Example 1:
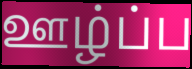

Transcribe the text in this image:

ஊழ்ப்ப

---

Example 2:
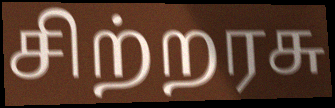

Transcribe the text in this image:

சிற்றரசு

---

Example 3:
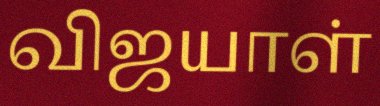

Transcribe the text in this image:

விஜயாள்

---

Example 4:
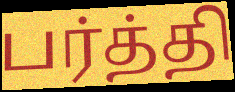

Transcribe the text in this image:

பர்த்தி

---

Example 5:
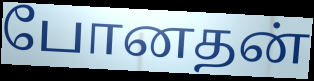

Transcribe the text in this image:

போனதன்